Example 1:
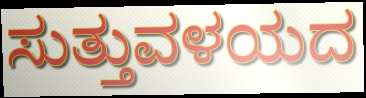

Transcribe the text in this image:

ಸುತ್ತುವಳಯದ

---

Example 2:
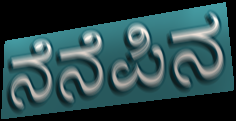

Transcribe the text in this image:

ನೆನೆಪಿನ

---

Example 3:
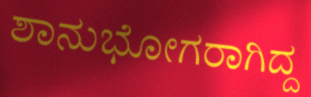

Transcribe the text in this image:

ಶಾನುಭೋಗರಾಗಿದ್ದ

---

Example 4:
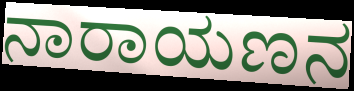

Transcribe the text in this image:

ನಾರಾಯಣನ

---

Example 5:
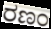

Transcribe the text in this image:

ರಣಂ